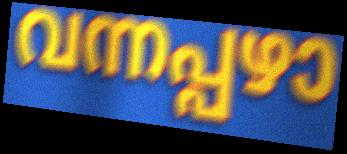
വന്നപ്പഴാ